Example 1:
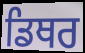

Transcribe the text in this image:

ਡਿਥਰ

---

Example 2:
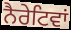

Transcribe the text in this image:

ਨੈਰੇਟਿਵਾਂ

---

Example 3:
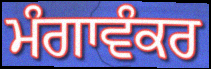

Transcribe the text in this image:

ਮੰਗਾਵੰਕਰ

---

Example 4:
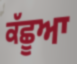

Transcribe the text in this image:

ਕੱਛੂਆ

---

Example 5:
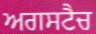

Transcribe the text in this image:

ਅਗਸਟੈਚ